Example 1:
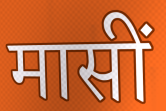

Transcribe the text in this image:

मासीं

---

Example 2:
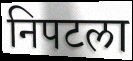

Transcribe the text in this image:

निपटला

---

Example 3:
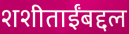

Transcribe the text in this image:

शशीताईंबद्दल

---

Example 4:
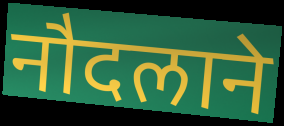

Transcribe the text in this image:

नौदलाने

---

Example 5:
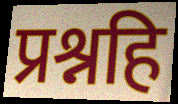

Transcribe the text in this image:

प्रश्नहि